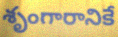
శృంగారానికే